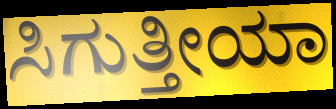
ಸಿಗುತ್ತೀಯಾ